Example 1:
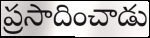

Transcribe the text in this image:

ప్రసాదించాడు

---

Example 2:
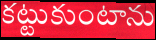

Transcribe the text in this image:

కట్టుకుంటాను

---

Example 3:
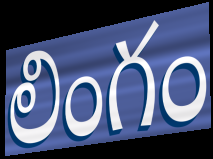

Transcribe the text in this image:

లింగం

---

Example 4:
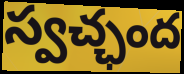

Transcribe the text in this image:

స్వచ్ఛంద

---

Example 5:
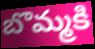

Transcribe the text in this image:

బొమ్మకి